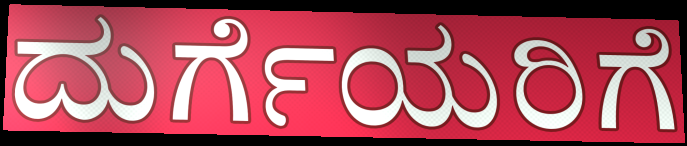
ದುರ್ಗೆಯರಿಗೆ